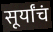
सूर्यांचं